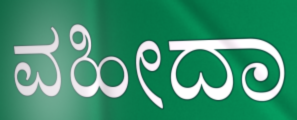
ವಹೀದಾ